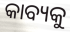
କାବ୍ୟକୁ